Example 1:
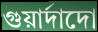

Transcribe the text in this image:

গুয়ার্দাদো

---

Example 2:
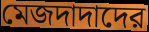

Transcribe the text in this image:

মেজদাদাদের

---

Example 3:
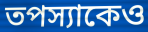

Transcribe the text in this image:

তপস্যাকেও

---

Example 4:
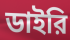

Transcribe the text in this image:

ডাইরি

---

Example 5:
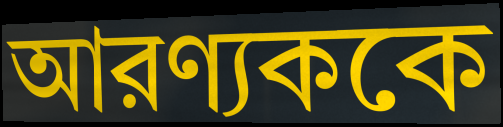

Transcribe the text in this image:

আরণ্যককে